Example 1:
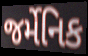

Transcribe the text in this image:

જર્મેનિક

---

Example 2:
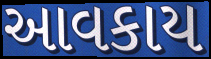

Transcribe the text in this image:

આવકાય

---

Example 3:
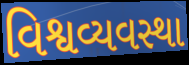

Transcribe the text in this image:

વિશ્વવ્યવસ્થા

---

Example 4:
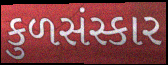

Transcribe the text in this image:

કુળસંસ્કાર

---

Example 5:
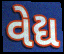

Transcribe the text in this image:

વેદ્ય